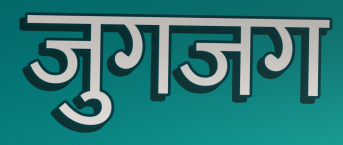
जुगजग